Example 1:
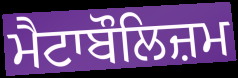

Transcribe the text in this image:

ਮੈਟਾਬੌਲਿਜ਼ਮ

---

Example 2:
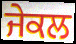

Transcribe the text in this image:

ਜੇਕਲ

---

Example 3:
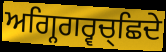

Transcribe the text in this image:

ਅਗ੍ਨਿਗਰ੍ਵਚ੍ਛਿਦੇ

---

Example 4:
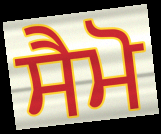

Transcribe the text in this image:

ਸੈਮੋ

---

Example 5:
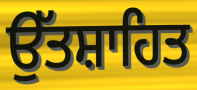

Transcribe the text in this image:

ਉੱਤਸ਼ਾਹਿਤ